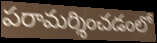
పరామర్శించడంలో